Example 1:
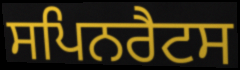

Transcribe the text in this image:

ਸਪਿਨਰੈਟਸ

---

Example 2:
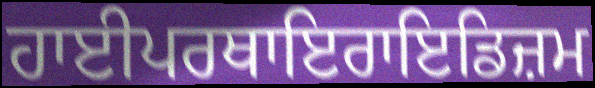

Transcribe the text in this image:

ਹਾਈਪਰਥਾਇਰਾਇਡਿਜ਼ਮ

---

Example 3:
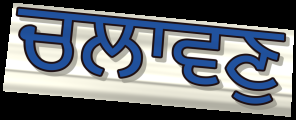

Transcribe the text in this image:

ਚਲਾਵਣੁ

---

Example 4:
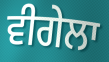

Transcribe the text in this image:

ਵੀਗੇਲਾ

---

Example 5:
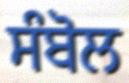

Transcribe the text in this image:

ਸੰਬੋਲ